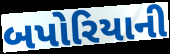
બપોરિયાની